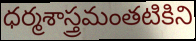
ధర్మశాస్త్రమంతటికిని